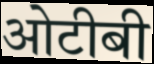
ओटीबी